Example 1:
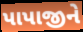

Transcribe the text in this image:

પાપાજીને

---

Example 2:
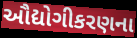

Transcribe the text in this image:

ઔદ્યોગીકરણના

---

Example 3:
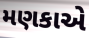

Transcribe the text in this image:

મણકાએ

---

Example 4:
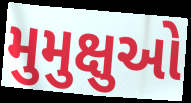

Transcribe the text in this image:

મુમુક્ષુઓ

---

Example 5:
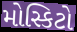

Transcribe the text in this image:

મોસ્કિટો